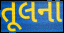
તૂલના